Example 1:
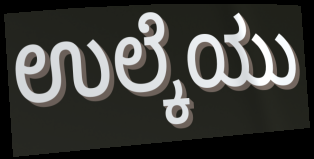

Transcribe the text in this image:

ಉಲ್ಕೆಯು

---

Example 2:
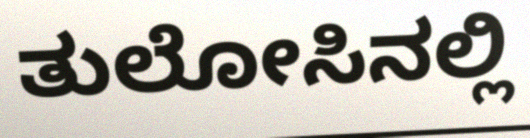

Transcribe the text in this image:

ತುಲೋಸಿನಲ್ಲಿ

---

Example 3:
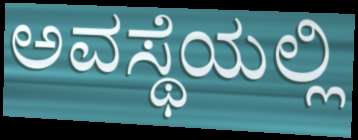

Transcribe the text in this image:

ಅವಸ್ಥೆಯಲ್ಲಿ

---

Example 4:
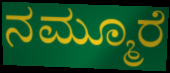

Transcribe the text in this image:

ನಮ್ಮೂರೆ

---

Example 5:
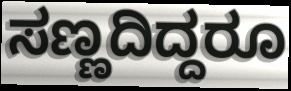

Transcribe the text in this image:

ಸಣ್ಣದಿದ್ದರೂ